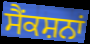
ਸੈਂਕਸ਼ਨਾਂ